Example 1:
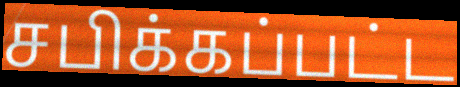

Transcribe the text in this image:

சபிக்கப்பட்ட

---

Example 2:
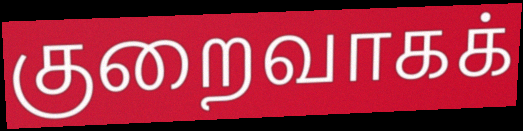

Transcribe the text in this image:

குறைவாகக்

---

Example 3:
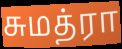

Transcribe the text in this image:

சுமத்ரா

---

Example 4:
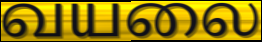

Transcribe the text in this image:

வயலை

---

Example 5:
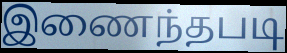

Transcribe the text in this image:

இணைந்தபடி